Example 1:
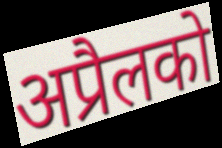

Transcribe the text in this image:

अप्रैलको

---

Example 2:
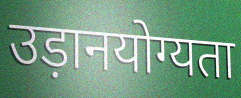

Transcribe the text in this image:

उड़ानयोग्यता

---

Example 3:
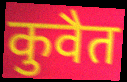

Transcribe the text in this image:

कुवैत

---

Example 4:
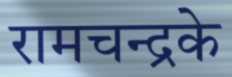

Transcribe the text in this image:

रामचन्द्रके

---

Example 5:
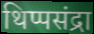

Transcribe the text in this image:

थिप्पसंद्रा